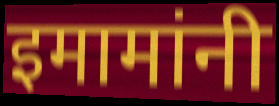
इमामांनी